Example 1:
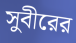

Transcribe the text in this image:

সুবীরের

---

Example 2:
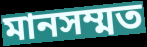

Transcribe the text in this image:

মানসম্মত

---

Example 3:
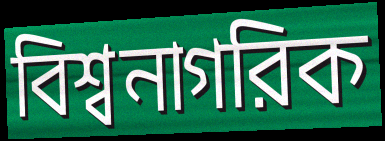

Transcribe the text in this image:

বিশ্বনাগরিক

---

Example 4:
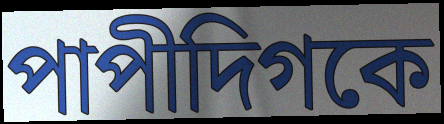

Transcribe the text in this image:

পাপীদিগকে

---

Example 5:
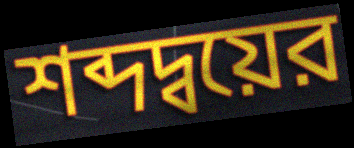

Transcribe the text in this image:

শব্দদ্বয়ের